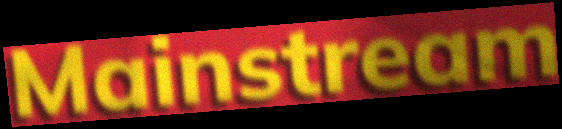
Mainstream